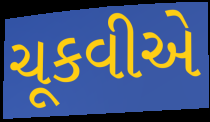
ચૂકવીએ